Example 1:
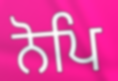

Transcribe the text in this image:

ਨੋਪਿ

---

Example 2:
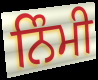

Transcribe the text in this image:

ਨਿੰਮੀ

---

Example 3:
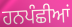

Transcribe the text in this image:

ਹਨਪੰਛੀਆਂ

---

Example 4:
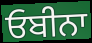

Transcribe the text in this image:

ਓਬੀਨਾ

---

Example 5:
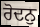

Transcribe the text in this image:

ਰੋਦਨੁ